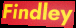
Findley